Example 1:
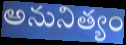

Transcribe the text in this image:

అనునిత్యం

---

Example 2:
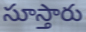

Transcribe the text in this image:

సూస్తారు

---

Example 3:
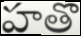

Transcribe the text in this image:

హతొ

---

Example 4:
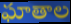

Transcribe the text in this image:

ఘాతాల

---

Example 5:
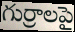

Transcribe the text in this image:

గుర్రాలపై